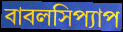
বাবলসিপ্যাপ